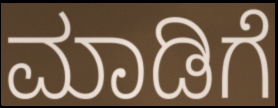
ಮಾಡಿಗೆ